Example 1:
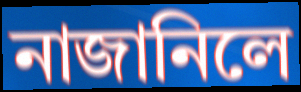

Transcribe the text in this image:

নাজানিলে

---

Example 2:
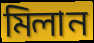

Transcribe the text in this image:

মিলান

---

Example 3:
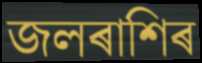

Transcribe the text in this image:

জলৰাশিৰ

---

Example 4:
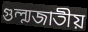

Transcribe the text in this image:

গুল্মজাতীয়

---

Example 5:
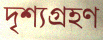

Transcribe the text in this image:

দৃশ্যগ্ৰহণ